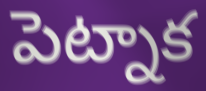
పెట్నాక